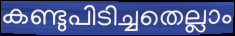
കണ്ടുപിടിച്ചതെല്ലാം